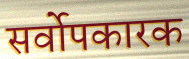
सर्वोपकारक